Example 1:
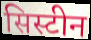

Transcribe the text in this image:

सिस्टीन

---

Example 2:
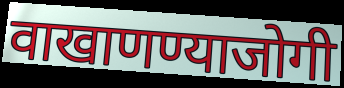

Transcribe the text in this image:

वाखाणण्याजोगी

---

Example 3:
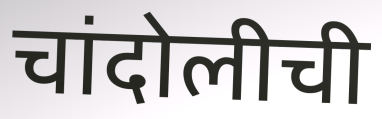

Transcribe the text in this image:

चांदोलीची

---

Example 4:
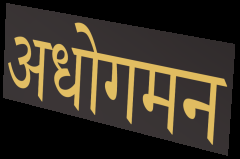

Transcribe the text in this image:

अधोगमन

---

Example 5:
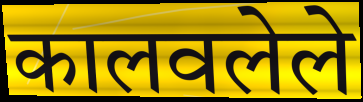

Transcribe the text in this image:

कालवलेले